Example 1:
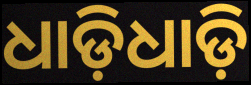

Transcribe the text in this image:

ଧାଡ଼ିଧାଡ଼ି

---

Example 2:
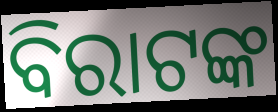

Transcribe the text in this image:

ବିରାଟଙ୍କ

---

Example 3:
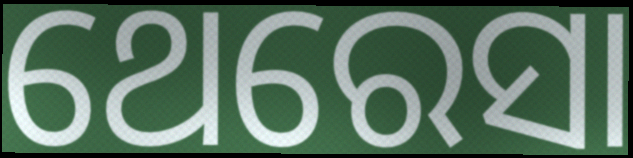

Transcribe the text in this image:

ଥେରେସା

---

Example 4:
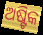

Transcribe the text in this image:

ଅଷ୍ଟିକ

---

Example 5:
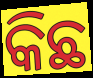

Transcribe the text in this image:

କିଛ